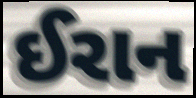
ઈરાન